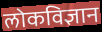
लोकविज्ञान